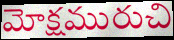
మోక్షమురుచి